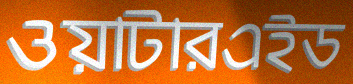
ওয়াটারএইড